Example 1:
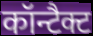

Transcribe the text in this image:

कॉन्टैक्ट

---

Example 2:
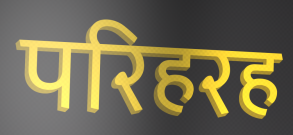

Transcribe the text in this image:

परिहरह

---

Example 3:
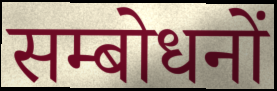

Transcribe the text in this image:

सम्बोधनों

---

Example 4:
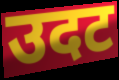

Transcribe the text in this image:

उदट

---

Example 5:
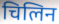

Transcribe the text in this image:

चिलिन